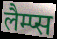
लैम्प्स